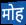
मोह